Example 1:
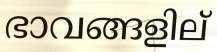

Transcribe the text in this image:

ഭാവങ്ങളില്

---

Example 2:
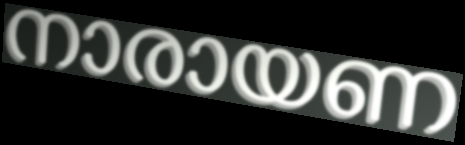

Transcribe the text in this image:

നാരായണ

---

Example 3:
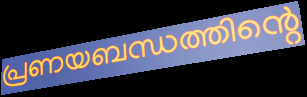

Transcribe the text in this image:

പ്രണയബന്ധത്തിന്റെ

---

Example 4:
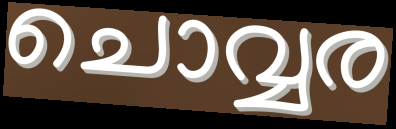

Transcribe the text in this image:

ചൊവ്വര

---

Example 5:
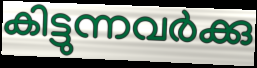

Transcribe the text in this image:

കിട്ടുന്നവർക്കു